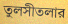
তুলসীতলার